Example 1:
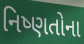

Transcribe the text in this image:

નિષ્ણતોના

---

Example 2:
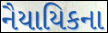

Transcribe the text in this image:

નૈયાયિકના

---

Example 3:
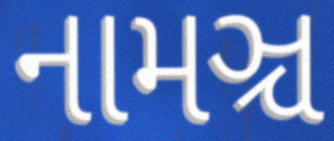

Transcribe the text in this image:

નામઞ્ચ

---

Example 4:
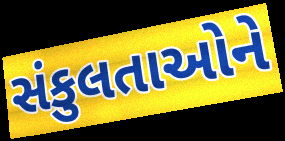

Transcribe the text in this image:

સંકુલતાઓને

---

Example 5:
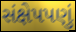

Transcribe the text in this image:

સંક્ષેપપણું